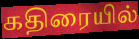
கதிரையில்